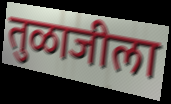
तुळाजीला